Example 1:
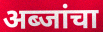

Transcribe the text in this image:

अब्जांचा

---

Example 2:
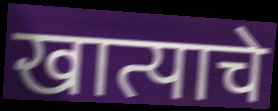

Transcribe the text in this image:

खात्याचे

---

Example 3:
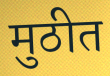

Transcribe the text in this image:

मुठीत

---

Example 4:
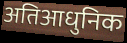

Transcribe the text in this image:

अतिआधुनिक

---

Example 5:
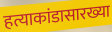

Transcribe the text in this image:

हत्याकांडासारख्या